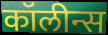
कॉलीन्स